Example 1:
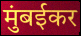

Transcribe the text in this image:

मुंबईकर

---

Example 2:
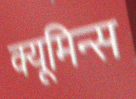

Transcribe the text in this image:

क्यूमिन्स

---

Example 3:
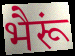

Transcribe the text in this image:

भैरूं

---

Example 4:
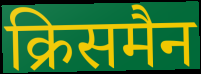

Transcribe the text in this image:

क्रिसमैन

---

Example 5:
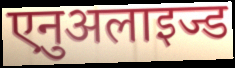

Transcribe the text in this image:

एनुअलाइज्ड